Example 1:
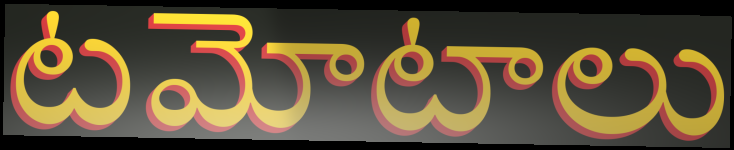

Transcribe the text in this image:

టమోటాలు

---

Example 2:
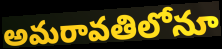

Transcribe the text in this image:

అమరావతిలోనూ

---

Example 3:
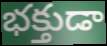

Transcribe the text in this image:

భక్తుడా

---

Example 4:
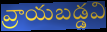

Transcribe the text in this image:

వ్రాయబడ్డవి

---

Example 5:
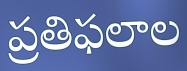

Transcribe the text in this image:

ప్రతిఫలాల